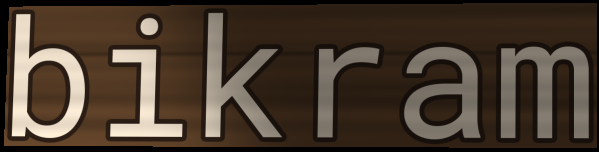
bikram